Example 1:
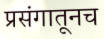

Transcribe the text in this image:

प्रसंगातूनच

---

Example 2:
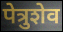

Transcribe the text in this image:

पेत्रुशेव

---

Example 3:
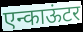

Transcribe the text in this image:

एन्काऊंटर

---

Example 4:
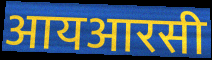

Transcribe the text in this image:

आयआरसी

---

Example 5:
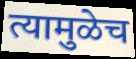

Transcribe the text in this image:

त्यामुळेच